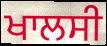
ਖਾਲਸੀ